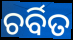
ଚର୍ବିତ